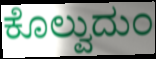
ಕೊಲ್ವುದುಂ